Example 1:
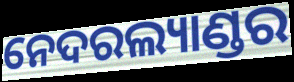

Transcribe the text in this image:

ନେଦରଲ୍ୟାଣ୍ଡର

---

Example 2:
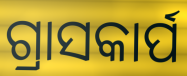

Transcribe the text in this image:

ଗ୍ରାସକାର୍ପ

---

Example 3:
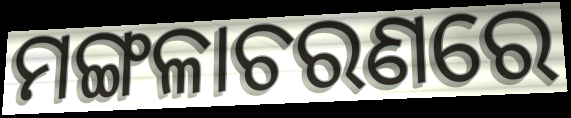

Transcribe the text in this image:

ମଙ୍ଗଳାଚରଣରେ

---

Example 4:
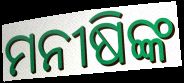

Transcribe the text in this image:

ମନୀଷିଙ୍କ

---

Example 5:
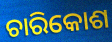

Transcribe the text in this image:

ଚାରିକୋଶ